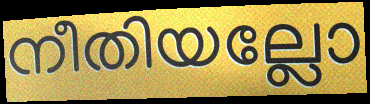
നീതിയല്ലോ